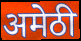
अमेठी